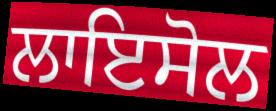
ਲਾਇਸੋਲ